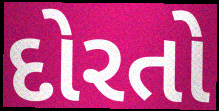
દોરતો